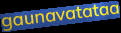
gaunavatataa